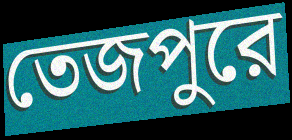
তেজপুরে